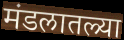
मंडलातल्या